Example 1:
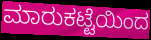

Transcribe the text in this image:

ಮಾರುಕಟ್ಟೆಯಿಂದ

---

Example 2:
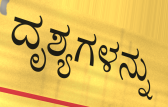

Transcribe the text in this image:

ದೃಶ್ಯಗಳನ್ನು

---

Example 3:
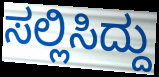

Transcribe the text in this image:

ಸಲ್ಲಿಸಿದ್ದು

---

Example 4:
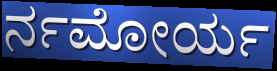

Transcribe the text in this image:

ರ್ನಮೋರ್ಯ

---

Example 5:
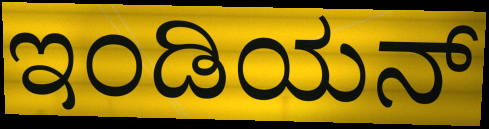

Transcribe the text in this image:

ಇಂಡಿಯನ್